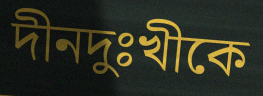
দীনদুঃখীকে